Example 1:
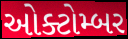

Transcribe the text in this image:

ઓક્ટોમ્બર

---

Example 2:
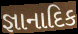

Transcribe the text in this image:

જ્ઞાનાદિક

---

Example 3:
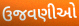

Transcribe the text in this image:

ઉજવણીઓ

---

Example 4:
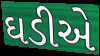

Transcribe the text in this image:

ઘડીએ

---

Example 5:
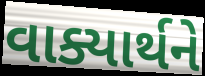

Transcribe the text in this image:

વાક્યાર્થને